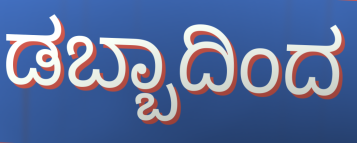
ಡಬ್ಬಾದಿಂದ